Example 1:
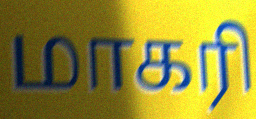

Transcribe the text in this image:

மாகரி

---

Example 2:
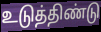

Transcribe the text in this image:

உடுத்திண்டு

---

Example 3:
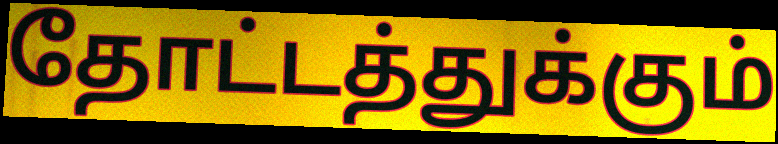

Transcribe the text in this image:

தோட்டத்துக்கும்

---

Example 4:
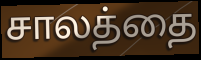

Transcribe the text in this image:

சாலத்தை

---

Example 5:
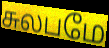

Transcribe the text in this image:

சுலபமே